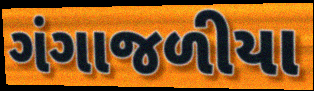
ગંગાજળીયા